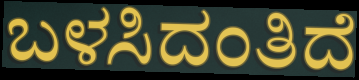
ಬಳಸಿದಂತಿದೆ